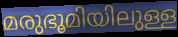
മരുഭൂമിയിലുള്ള